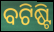
ବଟିଷ୍ଟି